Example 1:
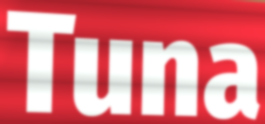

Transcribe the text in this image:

Tuna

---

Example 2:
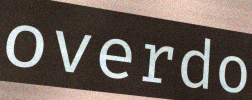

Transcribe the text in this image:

overdo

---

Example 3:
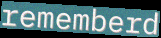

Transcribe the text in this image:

rememberd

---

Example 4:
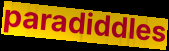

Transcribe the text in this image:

paradiddles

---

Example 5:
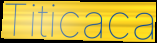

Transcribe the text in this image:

Titicaca